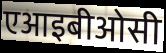
एआइबीओसी